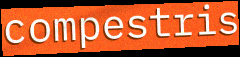
compestris